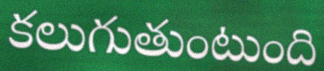
కలుగుతుంటుంది